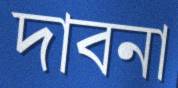
দাবনা